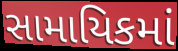
સામાયિકમાં